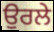
ਉਰਲੇ